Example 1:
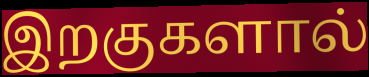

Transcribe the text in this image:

இறகுகளால்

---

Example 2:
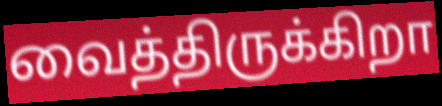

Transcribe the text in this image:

வைத்திருக்கிறா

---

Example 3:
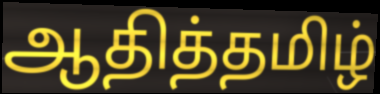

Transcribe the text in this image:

ஆதித்தமிழ்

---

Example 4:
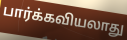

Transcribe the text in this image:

பார்க்கவியலாது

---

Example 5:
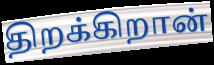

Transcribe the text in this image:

திறக்கிறான்